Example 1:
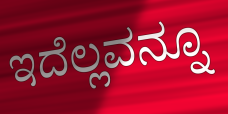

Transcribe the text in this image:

ಇದೆಲ್ಲವನ್ನೂ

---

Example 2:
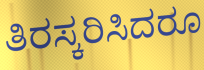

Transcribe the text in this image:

ತಿರಸ್ಕರಿಸಿದರೂ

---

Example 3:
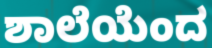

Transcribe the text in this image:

ಶಾಲೆಯೆಂದ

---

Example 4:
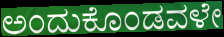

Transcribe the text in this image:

ಅಂದುಕೊಂಡವಳೇ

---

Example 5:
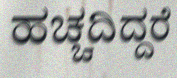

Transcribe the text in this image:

ಹಚ್ಚದಿದ್ದರೆ